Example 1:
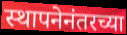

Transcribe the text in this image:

स्थापनेनंतरच्या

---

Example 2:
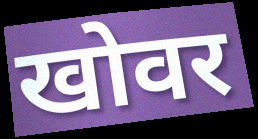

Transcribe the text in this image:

खोवर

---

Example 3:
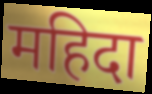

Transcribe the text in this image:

महिदा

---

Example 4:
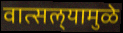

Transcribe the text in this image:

वात्सल्यामुळे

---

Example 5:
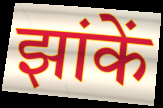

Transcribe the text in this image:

झांकें